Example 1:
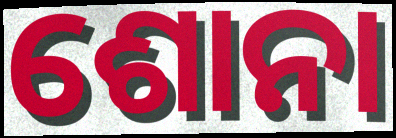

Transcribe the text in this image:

ଶୋନା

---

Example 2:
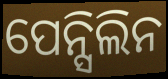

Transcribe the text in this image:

ପେନ୍ସିଲିନ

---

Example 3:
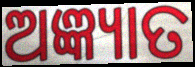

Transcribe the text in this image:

ଅଜ୍ଞ୍ୟାତ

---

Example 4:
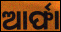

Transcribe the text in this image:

ଆର୍ଫା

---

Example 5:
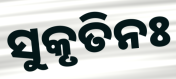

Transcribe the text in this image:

ସୁକୃତିନଃ